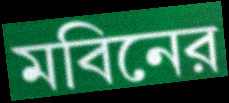
মবিনের